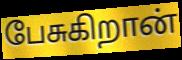
பேசுகிறான்